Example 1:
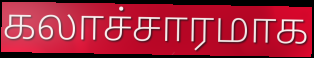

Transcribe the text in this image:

கலாச்சாரமாக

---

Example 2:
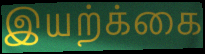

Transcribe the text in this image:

இயற்க்கை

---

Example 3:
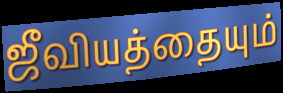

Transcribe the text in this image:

ஜீவியத்தையும்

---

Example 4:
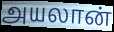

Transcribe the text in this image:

அயலான்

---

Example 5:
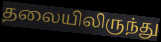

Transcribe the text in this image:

தலையிலிருந்து